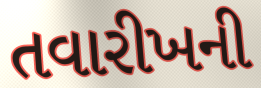
તવારીખની